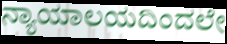
ನ್ಯಾಯಾಲಯದಿಂದಲೇ